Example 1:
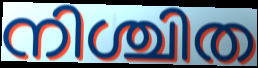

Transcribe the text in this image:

നിശ്ചിത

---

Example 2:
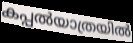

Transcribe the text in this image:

കപ്പൽയാത്രയിൽ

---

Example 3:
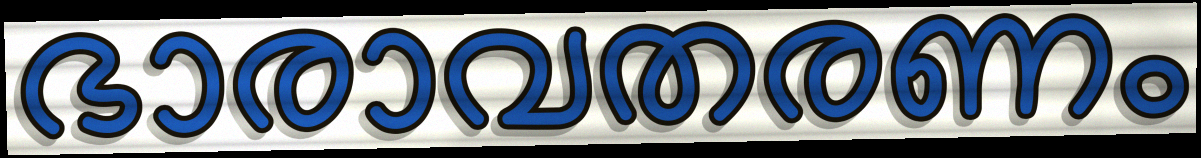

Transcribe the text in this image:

ഭാരാവതരണം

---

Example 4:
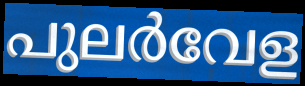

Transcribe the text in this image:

പുലർവേള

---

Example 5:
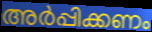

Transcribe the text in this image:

അർപ്പിക്കണം